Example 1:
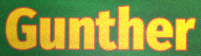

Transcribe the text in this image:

Gunther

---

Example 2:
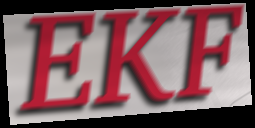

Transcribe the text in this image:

EKF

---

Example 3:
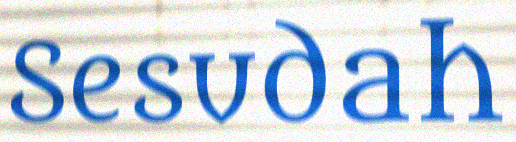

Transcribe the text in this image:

Sesudah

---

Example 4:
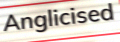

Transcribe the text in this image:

Anglicised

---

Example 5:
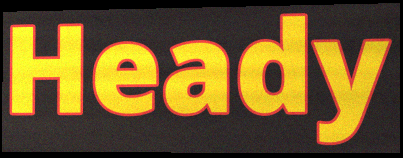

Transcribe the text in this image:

Heady